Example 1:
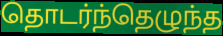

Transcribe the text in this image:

தொடர்ந்தெழுந்த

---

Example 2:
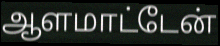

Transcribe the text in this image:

ஆளமாட்டேன்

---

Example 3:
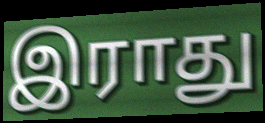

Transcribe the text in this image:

இராது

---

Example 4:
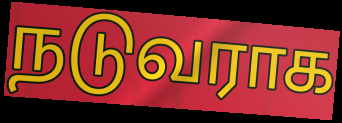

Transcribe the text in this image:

நடுவராக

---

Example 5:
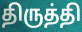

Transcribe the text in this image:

திருத்தி